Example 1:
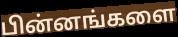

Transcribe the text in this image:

பின்னங்களை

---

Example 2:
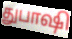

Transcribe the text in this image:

துபாஷி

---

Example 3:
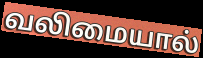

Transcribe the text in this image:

வலிமையால்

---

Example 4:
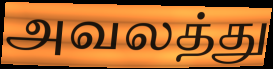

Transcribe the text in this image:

அவலத்து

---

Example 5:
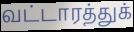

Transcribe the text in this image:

வட்டாரத்துக்